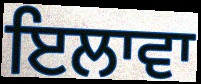
ਇਲਾਵਾ